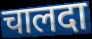
चालदा